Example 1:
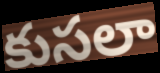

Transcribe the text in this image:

కుసలా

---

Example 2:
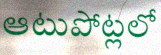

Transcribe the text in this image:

ఆటుపోట్లలో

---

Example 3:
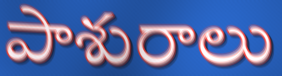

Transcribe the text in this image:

పాశురాలు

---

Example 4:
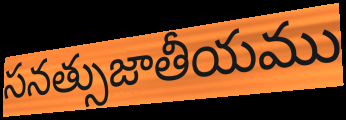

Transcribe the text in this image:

సనత్సుజాతీయము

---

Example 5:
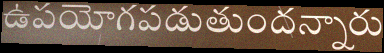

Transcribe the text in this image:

ఉపయోగపడుతుందన్నారు